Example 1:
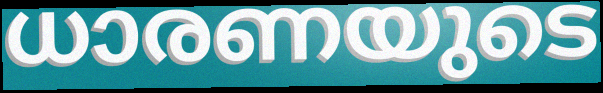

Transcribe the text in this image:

ധാരണയുടെ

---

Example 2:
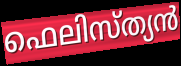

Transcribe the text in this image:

ഫെലിസ്ത്യൻ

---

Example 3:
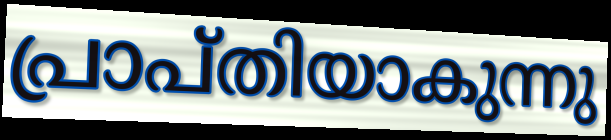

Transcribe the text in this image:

പ്രാപ്തിയാകുന്നു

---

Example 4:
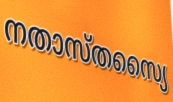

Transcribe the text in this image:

നതാസ്തസ്യൈ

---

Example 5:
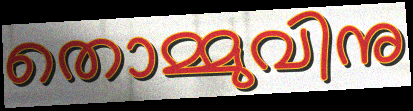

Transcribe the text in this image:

തൊമ്മുവിനു